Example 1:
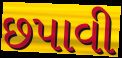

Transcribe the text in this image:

છપાવી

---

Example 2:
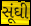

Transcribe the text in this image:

સૂંઘી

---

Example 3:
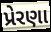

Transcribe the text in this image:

પ્રેરણા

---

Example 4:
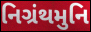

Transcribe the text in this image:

નિગ્રંથમુનિ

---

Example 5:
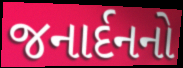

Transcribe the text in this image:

જનાર્દનનો